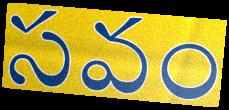
సవం